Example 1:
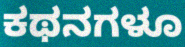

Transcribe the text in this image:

ಕಥನಗಳೂ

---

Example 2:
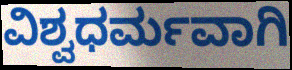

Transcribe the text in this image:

ವಿಶ್ವಧರ್ಮವಾಗಿ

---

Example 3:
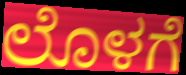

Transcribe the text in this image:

ಲೊಳಗೆ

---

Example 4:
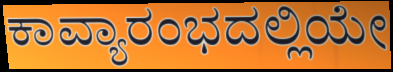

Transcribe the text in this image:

ಕಾವ್ಯಾರಂಭದಲ್ಲಿಯೇ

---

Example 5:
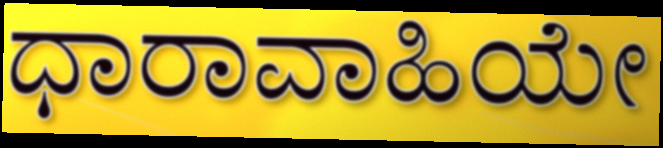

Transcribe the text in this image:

ಧಾರಾವಾಹಿಯೇ